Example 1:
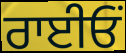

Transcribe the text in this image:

ਰਾਈਓਂ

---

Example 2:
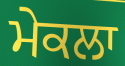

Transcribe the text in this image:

ਮੇਕਲਾ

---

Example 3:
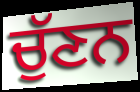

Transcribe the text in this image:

ਚੁੱਣਨ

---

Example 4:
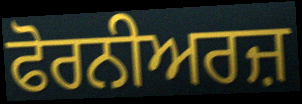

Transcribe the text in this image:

ਫੋਰਨੀਅਰਜ਼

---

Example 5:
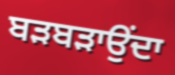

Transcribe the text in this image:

ਬੜਬੜਾਉਂਦਾ